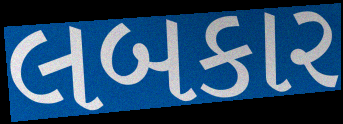
લબકાર